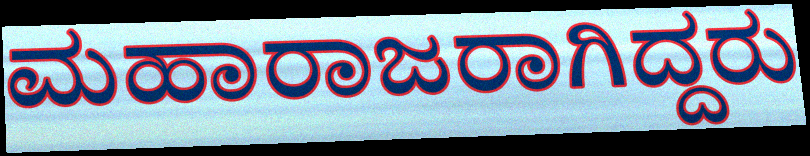
ಮಹಾರಾಜರಾಗಿದ್ದರು